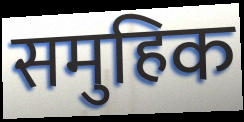
समुहिक